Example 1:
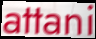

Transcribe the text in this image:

attani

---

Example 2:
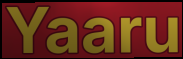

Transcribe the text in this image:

Yaaru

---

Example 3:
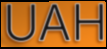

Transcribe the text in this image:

UAH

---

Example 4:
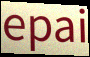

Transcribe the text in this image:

epai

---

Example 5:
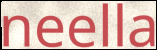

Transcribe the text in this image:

neella